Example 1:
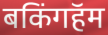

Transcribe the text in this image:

बकिंगहॅम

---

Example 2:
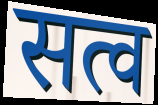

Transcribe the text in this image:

सत्व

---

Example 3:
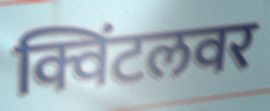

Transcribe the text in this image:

क्विंटलवर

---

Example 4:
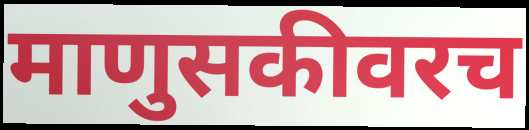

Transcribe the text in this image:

माणुसकीवरच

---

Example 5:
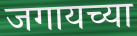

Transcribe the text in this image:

जगायच्या